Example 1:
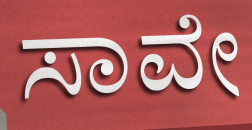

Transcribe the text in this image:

ಸಾವೇ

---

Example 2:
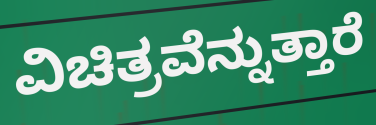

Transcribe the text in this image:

ವಿಚಿತ್ರವೆನ್ನುತ್ತಾರೆ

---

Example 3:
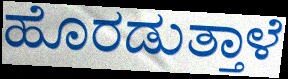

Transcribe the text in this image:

ಹೊರಡುತ್ತಾಳೆ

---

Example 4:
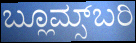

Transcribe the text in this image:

ಬ್ಲೂಮ್ಸ್‌ಬರಿ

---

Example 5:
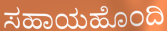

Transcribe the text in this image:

ಸಹಾಯಹೊಂದಿ